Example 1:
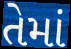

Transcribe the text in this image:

તેમાં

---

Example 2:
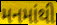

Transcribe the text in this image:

મનમાંથી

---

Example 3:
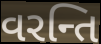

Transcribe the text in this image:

વરન્તિ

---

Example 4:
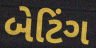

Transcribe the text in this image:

બેટિંગ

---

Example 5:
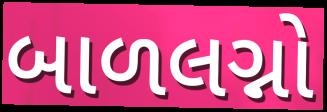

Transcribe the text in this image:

બાળલગ્નો